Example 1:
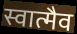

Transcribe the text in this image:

स्वात्मैव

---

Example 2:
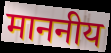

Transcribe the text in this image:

माननीय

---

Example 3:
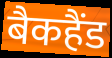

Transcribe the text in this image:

बैकहैंड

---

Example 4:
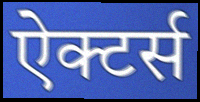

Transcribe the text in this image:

ऐक्‍टर्स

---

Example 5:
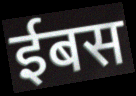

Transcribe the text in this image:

ईबस